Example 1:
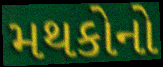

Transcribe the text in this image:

મથકોનો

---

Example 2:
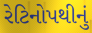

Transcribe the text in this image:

રેટિનોપથીનું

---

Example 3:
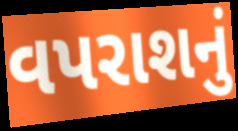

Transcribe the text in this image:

વપરાશનું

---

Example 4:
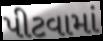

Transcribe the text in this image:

પીટવામાં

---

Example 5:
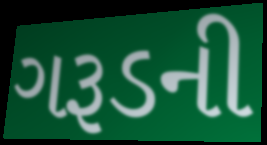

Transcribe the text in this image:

ગરૂડની